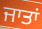
ਜਾਤਾਂ